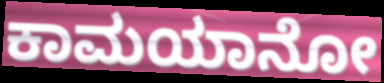
ಕಾಮಯಾನೋ